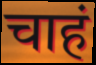
चाहं